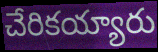
చేరికయ్యారు